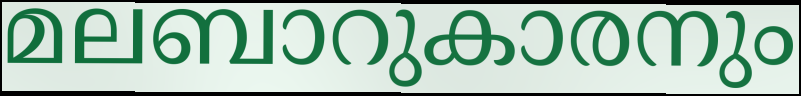
മലബാറുകാരനും